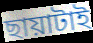
ছায়াটাই